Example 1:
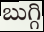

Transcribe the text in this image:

బుగ్గి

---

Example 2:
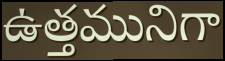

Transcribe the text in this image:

ఉత్తమునిగా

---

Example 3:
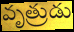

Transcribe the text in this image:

వృత్రుడు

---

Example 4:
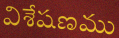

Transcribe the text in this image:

విశేషణము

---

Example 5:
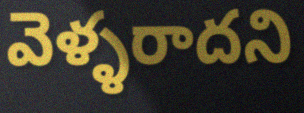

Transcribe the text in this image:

వెళ్ళరాదని